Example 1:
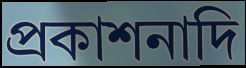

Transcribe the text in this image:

প্রকাশনাদি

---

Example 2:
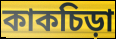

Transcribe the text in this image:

কাকচিড়া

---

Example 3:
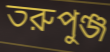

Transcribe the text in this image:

তরুপুঞ্জ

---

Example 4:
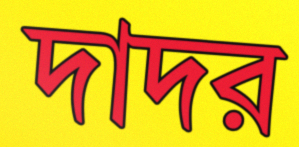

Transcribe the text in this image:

দাদর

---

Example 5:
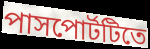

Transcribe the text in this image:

পাসপোর্টটিতে